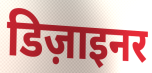
डिज़ाइनर